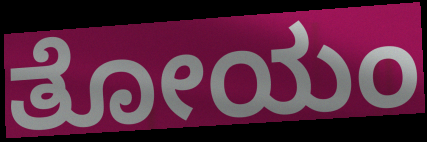
ತೋಯಂ